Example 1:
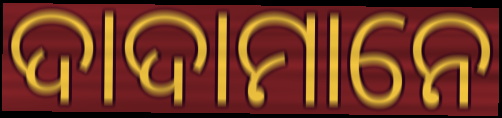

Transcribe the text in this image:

ଦାଦାମାନେ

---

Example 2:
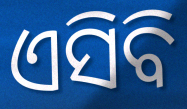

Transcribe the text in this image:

ଏସିବି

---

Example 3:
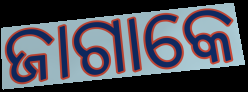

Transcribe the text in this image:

ଜାଗାକେ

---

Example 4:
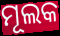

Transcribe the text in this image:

ମୂଲକ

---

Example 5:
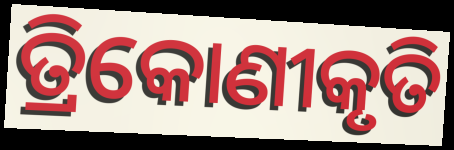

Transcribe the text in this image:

ତ୍ରିକୋଣୀକୃତି